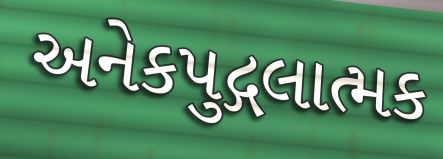
અનેકપુદ્ગલાત્મક